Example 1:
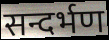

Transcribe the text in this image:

सन्दर्भण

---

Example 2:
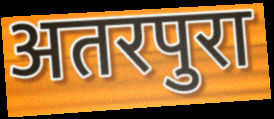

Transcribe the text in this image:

अतरपुरा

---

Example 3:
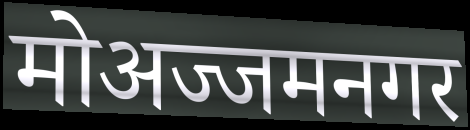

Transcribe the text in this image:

मोअज्जमनगर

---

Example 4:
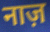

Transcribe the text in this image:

नाज़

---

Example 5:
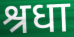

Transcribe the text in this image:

श्रधा